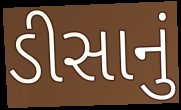
ડીસાનું